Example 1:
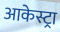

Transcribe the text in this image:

आकेस्ट्रा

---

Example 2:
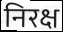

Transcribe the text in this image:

निरक्ष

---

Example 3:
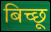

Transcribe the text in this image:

बिच्छू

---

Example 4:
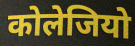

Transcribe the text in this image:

कोलेजियो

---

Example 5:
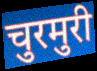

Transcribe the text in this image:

चुरमुरी